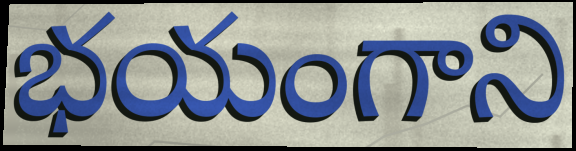
భయంగాని